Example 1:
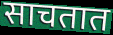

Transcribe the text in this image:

साचतात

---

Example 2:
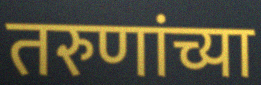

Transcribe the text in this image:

तरुणांच्या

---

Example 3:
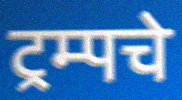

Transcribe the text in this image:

ट्रम्पचे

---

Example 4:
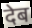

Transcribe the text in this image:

देब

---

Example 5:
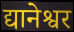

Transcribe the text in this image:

द्यानेश्वर